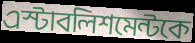
এস্টাবলিশমেন্টকে